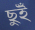
ছুইঁ